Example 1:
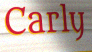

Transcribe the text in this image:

Carly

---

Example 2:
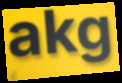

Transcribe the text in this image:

akg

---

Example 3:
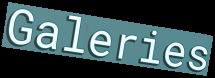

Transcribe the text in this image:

Galeries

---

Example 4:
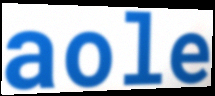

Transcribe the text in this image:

aole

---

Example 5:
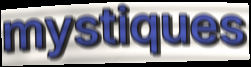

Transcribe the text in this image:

mystiques